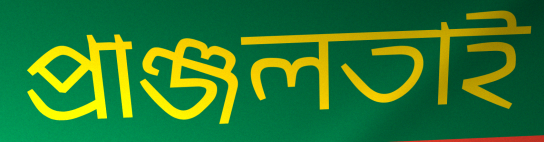
প্রাঞ্জলতাই